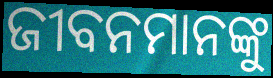
ଜୀବନମାନଙ୍କୁ